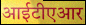
आईटीएआर